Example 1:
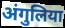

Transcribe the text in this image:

अंगुलिया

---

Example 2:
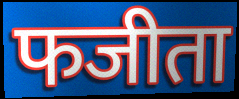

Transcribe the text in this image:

फजीता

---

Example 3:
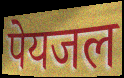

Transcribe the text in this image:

पेयजल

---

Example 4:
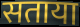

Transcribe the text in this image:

सताया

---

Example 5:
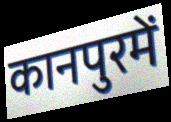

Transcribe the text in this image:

कानपुरमें